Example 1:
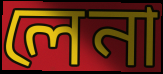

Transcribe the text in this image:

লেনা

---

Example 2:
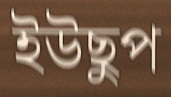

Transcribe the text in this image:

ইউছুপ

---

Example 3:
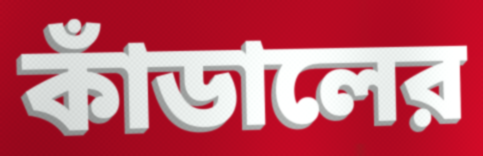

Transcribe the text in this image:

কাঁডালের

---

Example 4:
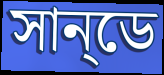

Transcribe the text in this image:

সান্‌ডে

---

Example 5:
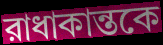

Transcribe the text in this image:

রাধাকান্তকে